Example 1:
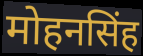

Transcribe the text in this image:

मोहनसिंह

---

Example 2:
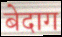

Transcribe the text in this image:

बेदाग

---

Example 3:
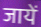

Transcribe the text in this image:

जायें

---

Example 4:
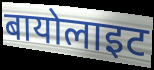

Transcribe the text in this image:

बायोलाइट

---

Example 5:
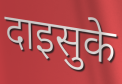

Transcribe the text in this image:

दाइसुके